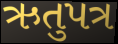
ઋતુપત્ર